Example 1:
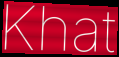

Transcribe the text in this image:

Khat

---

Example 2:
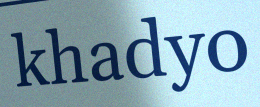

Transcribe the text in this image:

khadyo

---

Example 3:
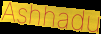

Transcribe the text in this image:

Ashhadu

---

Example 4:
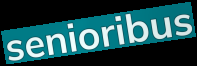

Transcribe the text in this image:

senioribus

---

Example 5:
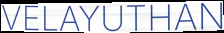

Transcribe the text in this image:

VELAYUTHAN